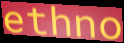
ethno